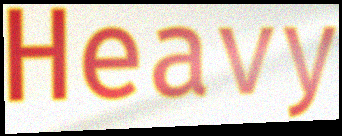
Heavy